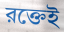
রক্তেই